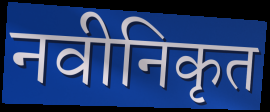
नवीनिकृत